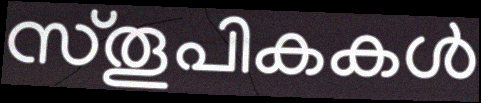
സ്തൂപികകൾ